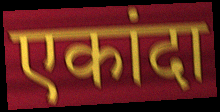
एकांदा